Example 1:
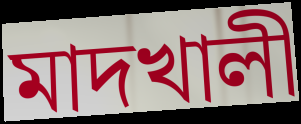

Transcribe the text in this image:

মাদখালী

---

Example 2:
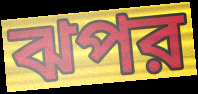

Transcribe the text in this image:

ঝপর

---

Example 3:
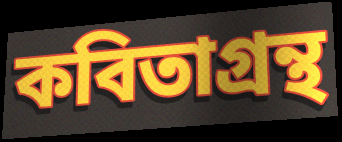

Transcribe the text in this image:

কবিতাগ্রন্থ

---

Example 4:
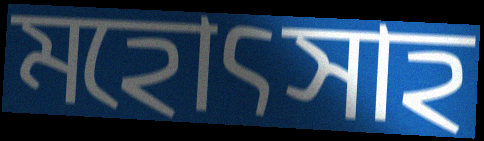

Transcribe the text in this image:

মহোৎসাহ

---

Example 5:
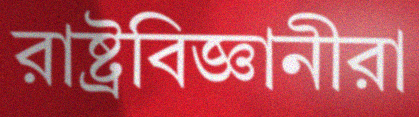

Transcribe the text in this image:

রাষ্ট্রবিজ্ঞানীরা